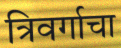
त्रिवर्गाचा